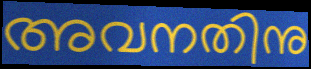
അവനതിനു